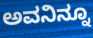
ಅವನಿನ್ನೂ